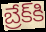
బ్రేక్‌కి